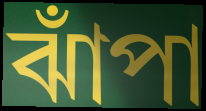
ঝাঁপা